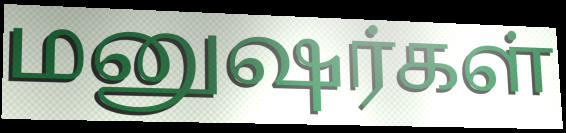
மனுஷர்கள்